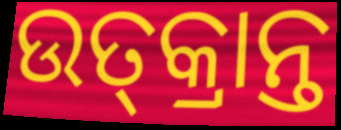
ଉତ୍‌କ୍ରାନ୍ତ